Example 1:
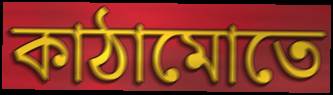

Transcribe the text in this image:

কাঠামোতে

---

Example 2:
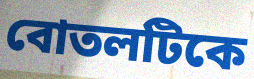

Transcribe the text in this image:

বোতলটিকে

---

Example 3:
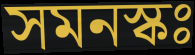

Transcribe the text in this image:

সমনস্কঃ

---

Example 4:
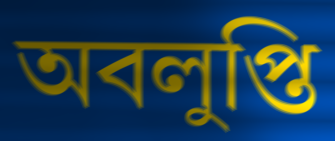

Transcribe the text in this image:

অবলুপ্তি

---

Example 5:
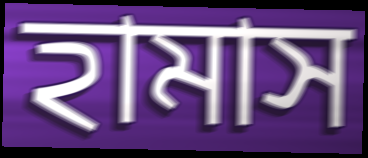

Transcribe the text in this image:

হামাস